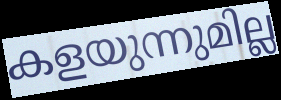
കളയുന്നുമില്ല